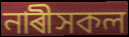
নাৰীসকল